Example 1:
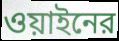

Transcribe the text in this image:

ওয়াইনের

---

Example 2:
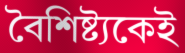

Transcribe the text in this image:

বৈশিষ্ট্যকেই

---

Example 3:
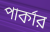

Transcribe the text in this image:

পার্কার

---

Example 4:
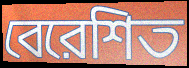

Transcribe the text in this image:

বেরেশিত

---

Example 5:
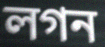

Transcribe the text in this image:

লগন